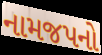
નામજપનો